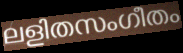
ലളിതസംഗീതം